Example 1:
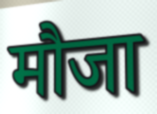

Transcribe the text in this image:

मौजा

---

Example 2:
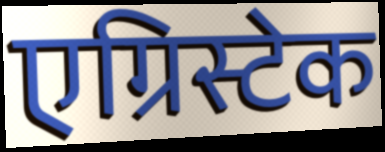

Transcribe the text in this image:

एग्रिस्टेक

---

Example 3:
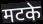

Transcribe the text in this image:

मटके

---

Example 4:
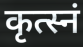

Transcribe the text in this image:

कृत्स्नं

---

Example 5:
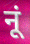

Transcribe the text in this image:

नूं